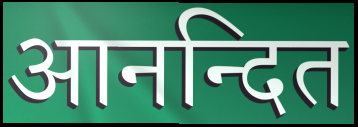
आनन्दित